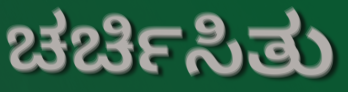
ಚರ್ಚಿಸಿತು